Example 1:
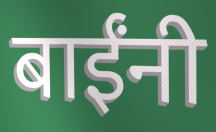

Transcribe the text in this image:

बाईंनी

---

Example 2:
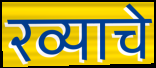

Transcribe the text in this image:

रव्याचे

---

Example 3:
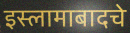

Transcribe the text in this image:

इस्लामाबादचे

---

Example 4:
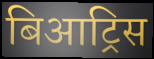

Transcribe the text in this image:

बिआट्रिस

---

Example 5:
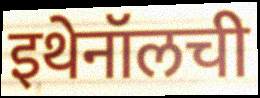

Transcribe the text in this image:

इथेनॉलची